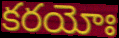
కరయోః